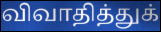
விவாதித்துக்